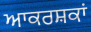
ਆਕਰਸ਼ਕਾਂ